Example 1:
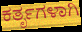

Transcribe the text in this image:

ಕರ್ತೃಗಳಾಗಿ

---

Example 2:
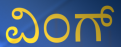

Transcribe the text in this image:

ವಿಂಗ್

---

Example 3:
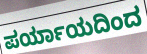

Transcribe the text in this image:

ಪರ್ಯಾಯದಿಂದ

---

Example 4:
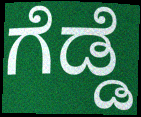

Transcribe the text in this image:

ಗೆಡ್ಡೆ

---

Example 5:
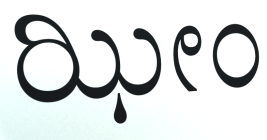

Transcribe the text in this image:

ಝೀಂ